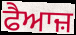
ਫੈਆਜ਼